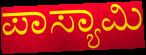
ಪಾಸ್ಯಾಮಿ